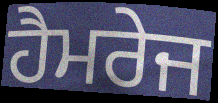
ਹੈਮਰੇਜ